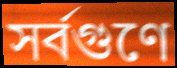
সর্বগুণে